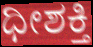
ಧೀಶಕ್ತಿ